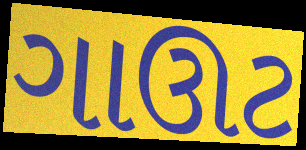
ગાઊટ